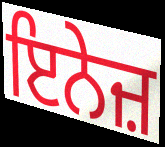
ਇਨੇਜ਼